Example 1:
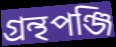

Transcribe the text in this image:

গ্রন্থপঞ্জি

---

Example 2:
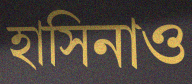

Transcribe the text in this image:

হাসিনাও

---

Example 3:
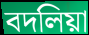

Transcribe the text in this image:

বদলিয়া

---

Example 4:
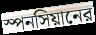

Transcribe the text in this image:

স্পনসিয়ানের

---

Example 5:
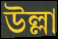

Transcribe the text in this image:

উল্লা